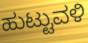
ಹುಟ್ಟುವಳಿ